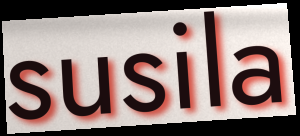
susila